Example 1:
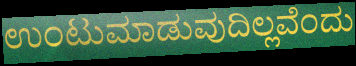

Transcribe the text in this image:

ಉಂಟುಮಾಡುವುದಿಲ್ಲವೆಂದು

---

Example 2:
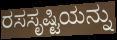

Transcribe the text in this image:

ರಸಸೃಷ್ಟಿಯನ್ನು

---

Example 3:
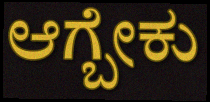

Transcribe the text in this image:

ಆಗ್ಬೇಕು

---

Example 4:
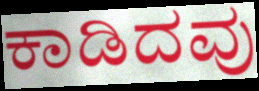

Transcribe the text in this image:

ಕಾಡಿದವು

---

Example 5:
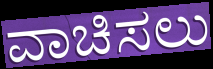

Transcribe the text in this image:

ವಾಚಿಸಲು